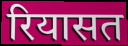
रियासत